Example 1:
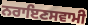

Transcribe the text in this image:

ਨਰਾਇਣਸਵਾਮੀ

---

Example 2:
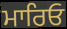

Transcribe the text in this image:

ਮਾਰਿਓ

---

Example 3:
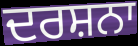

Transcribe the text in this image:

ਦਰਸ਼ਨਾ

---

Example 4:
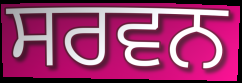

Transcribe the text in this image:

ਸਰਵਨ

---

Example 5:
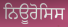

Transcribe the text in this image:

ਨਿਊਰੋਸਿਸ